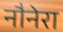
नौनेरा